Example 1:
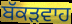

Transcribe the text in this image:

ਬੱਕੜਵਾਹ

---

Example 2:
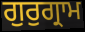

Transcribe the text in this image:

ਗੁਰੁਗ੍ਰਾਮ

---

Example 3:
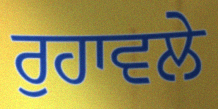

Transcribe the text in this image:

ਰੁਹਾਵਲੇ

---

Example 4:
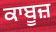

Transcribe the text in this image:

ਕਾਬੂਜ਼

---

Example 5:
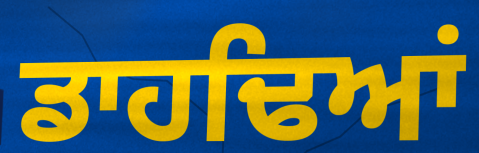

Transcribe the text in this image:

ਡਾਹਢਿਆਂ